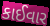
કાઈવાર